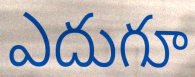
ఎదుగూ